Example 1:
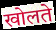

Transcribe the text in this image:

खोलते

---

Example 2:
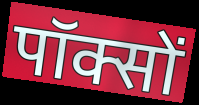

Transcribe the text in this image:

पॉक्सों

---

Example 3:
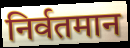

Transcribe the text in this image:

निर्वतमान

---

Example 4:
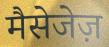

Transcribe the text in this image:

मैसेजेज़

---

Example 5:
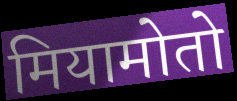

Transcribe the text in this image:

मियामोतो